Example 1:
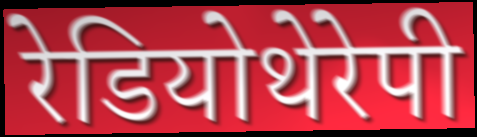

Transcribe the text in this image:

रेडियोथेरेपी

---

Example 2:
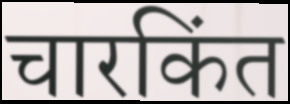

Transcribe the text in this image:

चारकिंत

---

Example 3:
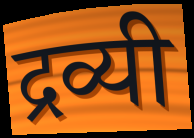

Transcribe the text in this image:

द्रव्यी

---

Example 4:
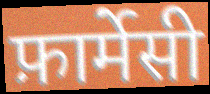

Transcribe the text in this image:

फ़ार्मेसी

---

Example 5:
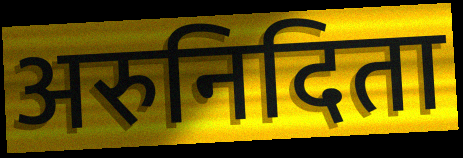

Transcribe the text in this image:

अरुनिदिता